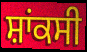
ਸ਼ਾਂਕਸੀ